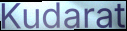
Kudarat